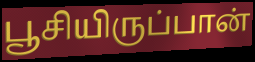
பூசியிருப்பான்